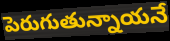
పెరుగుతున్నాయనే